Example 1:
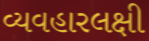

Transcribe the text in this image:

વ્યવહારલક્ષી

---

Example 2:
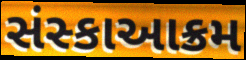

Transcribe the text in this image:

સંસ્કાઆક્રમ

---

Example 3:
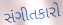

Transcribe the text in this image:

સંગીતકારો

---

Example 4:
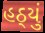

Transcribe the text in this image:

હઠ્યું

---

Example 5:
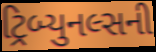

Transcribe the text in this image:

ટ્રિબ્યુનલ્સની